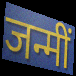
जन्मीं